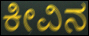
ಕೀವಿನ